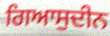
ਗਿਆਸੁਦੀਨ